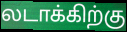
லடாக்கிற்கு